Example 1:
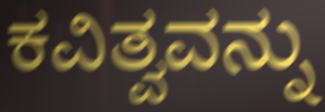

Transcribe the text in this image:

ಕವಿತ್ವವನ್ನು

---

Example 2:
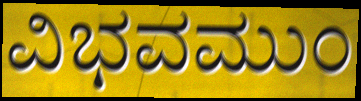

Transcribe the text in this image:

ವಿಭವಮುಂ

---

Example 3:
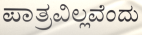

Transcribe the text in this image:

ಪಾತ್ರವಿಲ್ಲವೆಂದು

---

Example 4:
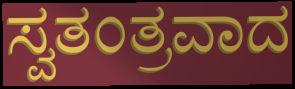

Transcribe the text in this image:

ಸ್ವತಂತ್ರವಾದ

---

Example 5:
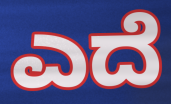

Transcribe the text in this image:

ಎದೆ